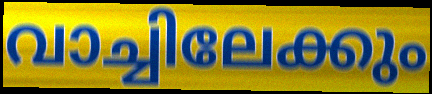
വാച്ചിലേക്കും